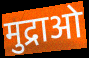
मुद्राओ